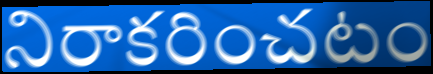
నిరాకరించటం